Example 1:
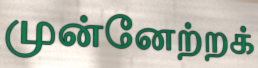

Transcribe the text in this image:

முன்னேற்றக்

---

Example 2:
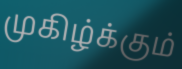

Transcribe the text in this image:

முகிழ்க்கும்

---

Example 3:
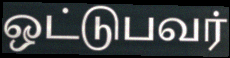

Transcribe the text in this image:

ஒட்டுபவர்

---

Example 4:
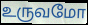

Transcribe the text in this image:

உருவமோ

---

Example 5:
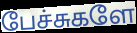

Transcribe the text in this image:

பேச்சுகளே